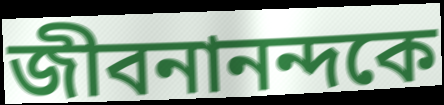
জীবনানন্দকে